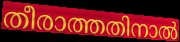
തീരാത്തതിനാൽ